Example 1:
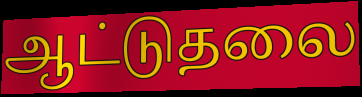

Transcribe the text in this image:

ஆட்டுதலை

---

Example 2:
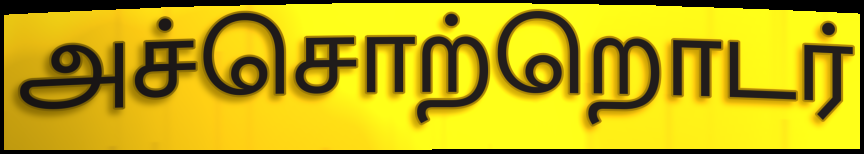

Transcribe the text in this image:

அச்சொற்றொடர்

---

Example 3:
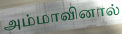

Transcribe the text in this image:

அம்மாவினால்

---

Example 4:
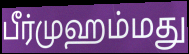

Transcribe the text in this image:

பீர்முஹம்மது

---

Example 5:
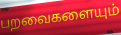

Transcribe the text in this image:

பறவைகளையும்